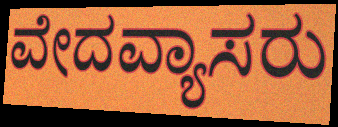
ವೇದವ್ಯಾಸರು